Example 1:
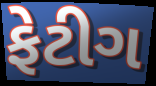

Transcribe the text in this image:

ફેટીગ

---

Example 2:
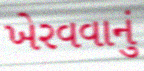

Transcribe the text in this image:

ખેરવવાનું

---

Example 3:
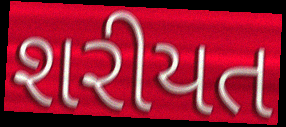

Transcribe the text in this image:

શરીયત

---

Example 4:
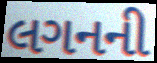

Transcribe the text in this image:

લગનની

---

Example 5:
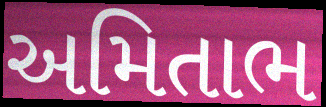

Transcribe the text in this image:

અમિતાભ